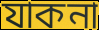
যাকনা